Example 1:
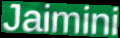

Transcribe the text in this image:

Jaimini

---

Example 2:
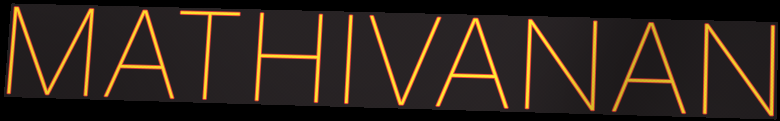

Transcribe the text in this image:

MATHIVANAN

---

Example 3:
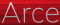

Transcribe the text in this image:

Arce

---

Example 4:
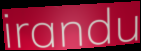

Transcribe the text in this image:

irandu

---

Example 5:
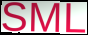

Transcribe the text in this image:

SML